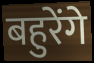
बहुरेंगे